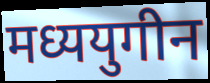
मध्ययुगीन